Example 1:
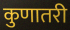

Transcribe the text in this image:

कुणातरी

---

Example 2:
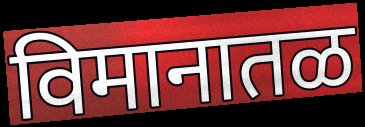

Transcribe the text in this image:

विमानातळ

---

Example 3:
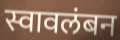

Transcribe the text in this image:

स्वावलंबन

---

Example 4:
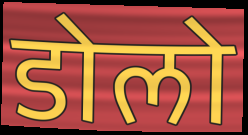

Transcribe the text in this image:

डोलो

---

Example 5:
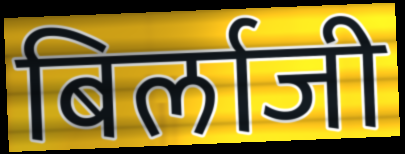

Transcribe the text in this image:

बिर्लाजी